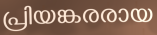
പ്രിയങ്കരരായ